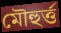
মৌহুৰ্ত্ত